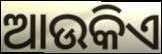
ଆଉକିଏ